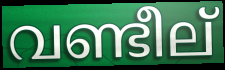
വണ്ടീല്